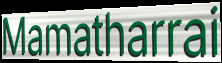
Mamatharrai